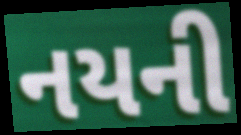
નયની